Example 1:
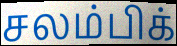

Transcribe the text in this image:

சலம்பிக்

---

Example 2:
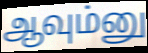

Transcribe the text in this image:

ஆவும்னு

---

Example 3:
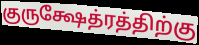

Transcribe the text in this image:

குருக்ஷேத்ரத்திற்கு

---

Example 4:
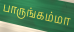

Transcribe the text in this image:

பாருங்கம்மா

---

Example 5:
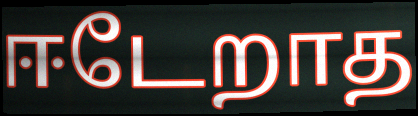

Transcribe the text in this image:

ஈடேறாத